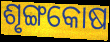
ଶୃଙ୍ଗକୋଷ